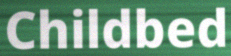
Childbed